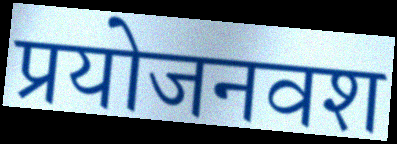
प्रयोजनवश